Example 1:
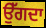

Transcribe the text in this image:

ਉੱਗਦਾ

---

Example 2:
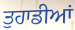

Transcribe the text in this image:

ਤੁਹਾਡੀਆਂ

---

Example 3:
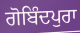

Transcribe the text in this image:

ਗੋਬਿੰਦਪੁਰਾ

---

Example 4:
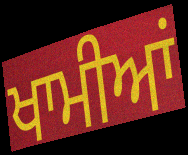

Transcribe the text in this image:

ਖਾਮੀਆਂ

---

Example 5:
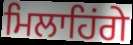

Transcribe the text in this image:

ਮਿਲਾਹਿਂਗੇ